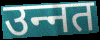
उन्‍नत